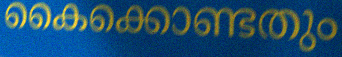
കൈക്കൊണ്ടതും